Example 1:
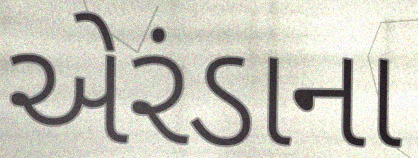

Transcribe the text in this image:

એરંડાના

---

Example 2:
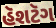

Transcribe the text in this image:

હૅશટૅગ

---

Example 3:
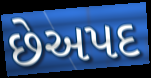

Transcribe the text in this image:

છેઅપદ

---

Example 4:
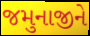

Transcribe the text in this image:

જમુનાજીને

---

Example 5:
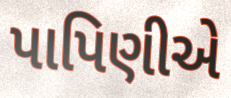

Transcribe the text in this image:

પાપિણીએ